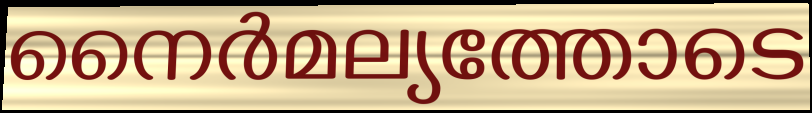
നൈർമല്യത്തോടെ